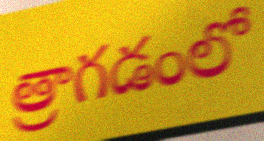
త్రాగడంలో